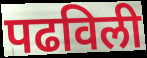
पढविली